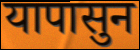
यापासुन